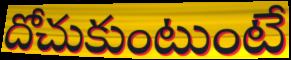
దోచుకుంటుంటే